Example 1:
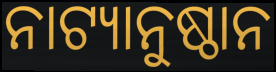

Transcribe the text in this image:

ନାଟ୍ୟାନୁଷ୍ଠାନ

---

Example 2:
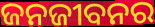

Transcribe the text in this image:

ଜନଜୀବନର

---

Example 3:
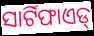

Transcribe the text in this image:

ସାର୍ଟିଫାଏଡ୍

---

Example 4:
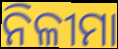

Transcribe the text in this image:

ନିଳୀମା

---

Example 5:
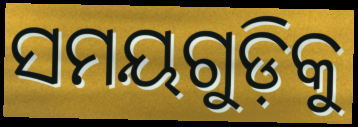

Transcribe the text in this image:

ସମୟଗୁଡ଼ିକୁ